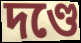
দণ্ডে